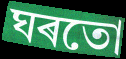
ঘৰতো